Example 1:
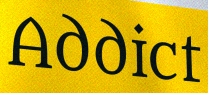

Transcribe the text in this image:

Addict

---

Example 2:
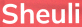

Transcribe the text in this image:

Sheuli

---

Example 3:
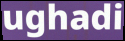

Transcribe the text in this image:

ughadi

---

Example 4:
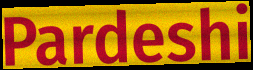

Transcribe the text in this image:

Pardeshi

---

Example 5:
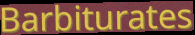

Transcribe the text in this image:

Barbiturates